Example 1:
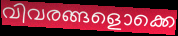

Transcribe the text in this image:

വിവരങ്ങളൊക്കെ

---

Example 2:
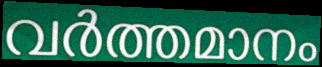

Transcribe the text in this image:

വർത്തമാനം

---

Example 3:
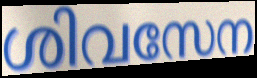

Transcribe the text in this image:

ശിവസേന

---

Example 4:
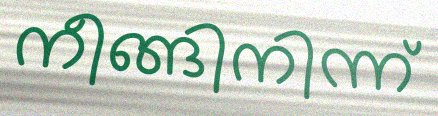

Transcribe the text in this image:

നീങ്ങിനിന്ന്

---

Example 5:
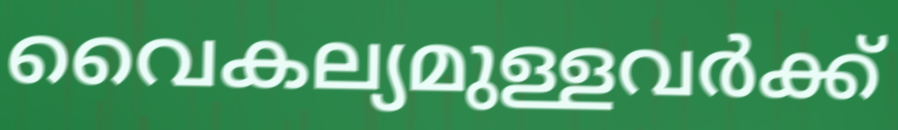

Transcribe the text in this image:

വൈകല്യമുള്ളവർക്ക്